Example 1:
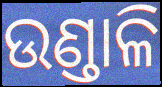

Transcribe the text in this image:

ଉଣ୍ଡାଳି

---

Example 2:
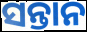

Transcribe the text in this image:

ସନ୍ତାନ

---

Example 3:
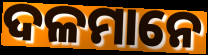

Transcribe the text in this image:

ଦଳମାନେ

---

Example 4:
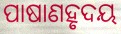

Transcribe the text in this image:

ପାଷାଣହୃଦୟ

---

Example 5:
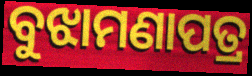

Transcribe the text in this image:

ବୁଝାମଣାପତ୍ର